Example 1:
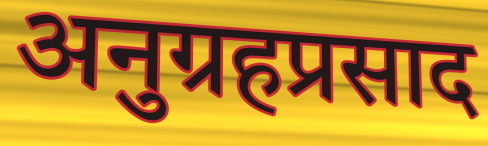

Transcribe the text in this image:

अनुग्रहप्रसाद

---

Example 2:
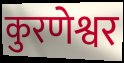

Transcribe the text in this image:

कुरणेश्वर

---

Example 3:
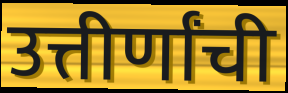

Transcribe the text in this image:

उत्तीर्णांची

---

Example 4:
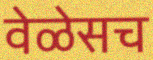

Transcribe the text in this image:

वेळेसच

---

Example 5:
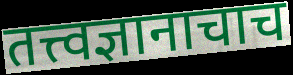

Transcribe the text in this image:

तत्त्वज्ञानाचाच